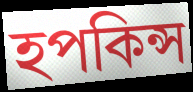
হপকিন্স